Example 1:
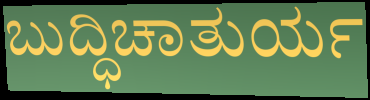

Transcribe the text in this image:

ಬುದ್ಧಿಚಾತುರ್ಯ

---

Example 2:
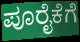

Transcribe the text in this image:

ಪೂರೈಕೆಗೆ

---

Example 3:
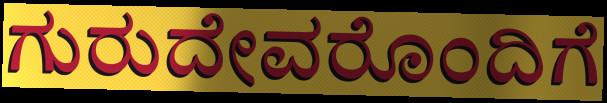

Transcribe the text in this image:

ಗುರುದೇವರೊಂದಿಗೆ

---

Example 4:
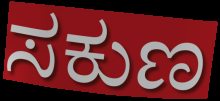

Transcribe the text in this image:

ಸಕುಣ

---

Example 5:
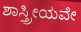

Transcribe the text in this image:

ಶಾಸ್ತ್ರೀಯವೇ